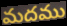
మదము